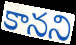
కానని